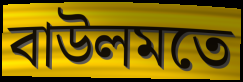
বাউলমতে